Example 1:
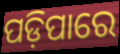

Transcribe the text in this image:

ପଡ଼ିପାରେ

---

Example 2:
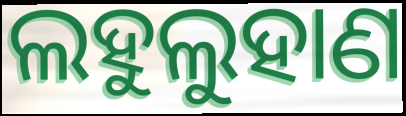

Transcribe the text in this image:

ଲହୁଲୁହାଣ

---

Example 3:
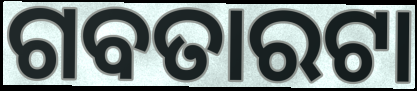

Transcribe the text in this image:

ଗବତାରଟା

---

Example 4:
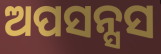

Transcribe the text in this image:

ଅପସନ୍ସସ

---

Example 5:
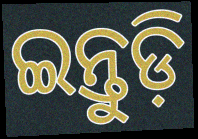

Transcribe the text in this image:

ଇନ୍ତୁଡ଼ି